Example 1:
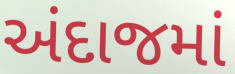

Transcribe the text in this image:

અંદાજમાં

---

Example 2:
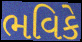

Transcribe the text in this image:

ભવિકે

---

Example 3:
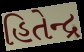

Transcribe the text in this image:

હિતેન્દ્ર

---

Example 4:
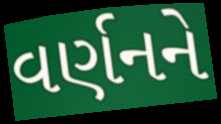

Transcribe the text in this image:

વર્ણનને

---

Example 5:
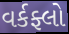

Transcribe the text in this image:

વર્કફ્લો